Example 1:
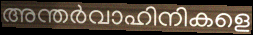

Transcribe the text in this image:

അന്തർവാഹിനികളെ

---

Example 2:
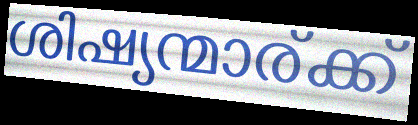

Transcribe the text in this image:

ശിഷ്യന്മാര്ക്ക്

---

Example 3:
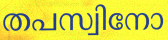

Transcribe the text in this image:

തപസ്വിനോ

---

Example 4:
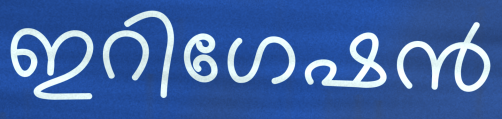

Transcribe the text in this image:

ഇറിഗേഷൻ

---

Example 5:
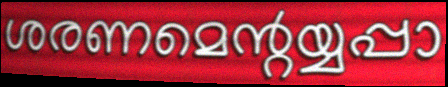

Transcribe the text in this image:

ശരണമെന്റയ്യപ്പാ